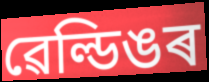
ৱেল্ডিঙৰ